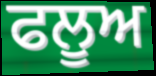
ਫਲੂਅ